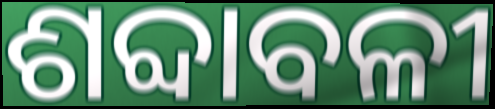
ଶବ୍ଦାବଳୀ